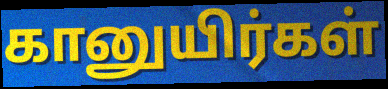
கானுயிர்கள்